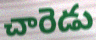
చారెడు